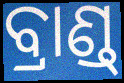
ବ୍ରାଣ୍ଡ୍